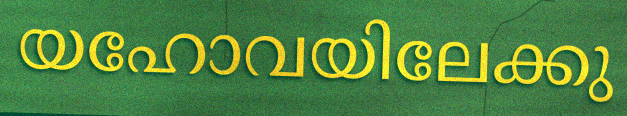
യഹോവയിലേക്കു